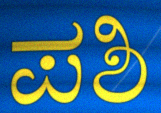
ಪಶಿ